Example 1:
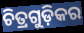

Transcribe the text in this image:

ଚିତ୍ରଗୁଡ଼ିକର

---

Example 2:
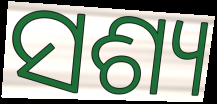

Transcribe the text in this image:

ସଶ୍ୟ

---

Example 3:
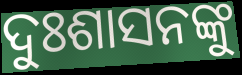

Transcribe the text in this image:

ଦୁଃଶାସନଙ୍କୁ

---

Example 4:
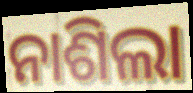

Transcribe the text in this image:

ନାଶିଲା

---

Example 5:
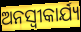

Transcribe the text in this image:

ଅନସ୍ବୀକାର୍ଯ୍ୟ